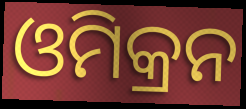
ଓମିକ୍ରନ